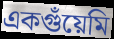
একগুঁয়েমি